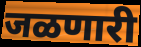
जळणारी